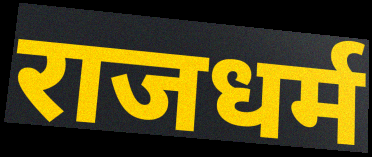
राजधर्म